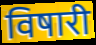
विषारी